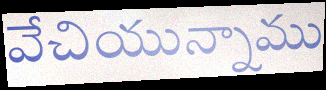
వేచియున్నాము